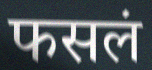
फसलं